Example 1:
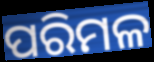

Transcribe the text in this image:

ପରିମଳ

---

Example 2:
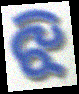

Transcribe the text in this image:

ଝି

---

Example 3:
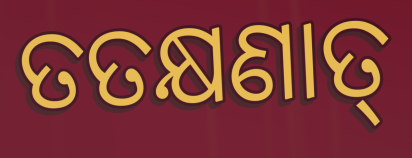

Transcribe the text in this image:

ତତକ୍ଷଣାତ୍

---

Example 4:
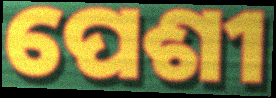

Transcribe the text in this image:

ପେଶୀ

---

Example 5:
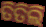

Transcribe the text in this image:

ତିତିଲି